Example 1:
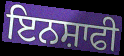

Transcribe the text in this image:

ਇਨਸ਼ਾਫੀ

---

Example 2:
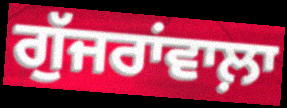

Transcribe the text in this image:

ਗੁੱਜਰਾਂਵਾਲ਼ਾ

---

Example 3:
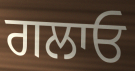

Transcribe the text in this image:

ਗਲਾਓ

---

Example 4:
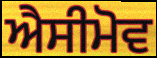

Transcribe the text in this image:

ਐਸੀਮੋਵ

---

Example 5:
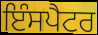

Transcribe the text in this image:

ਇੰਸਪੈਟਰ